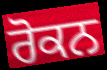
ਰੋਕਨ